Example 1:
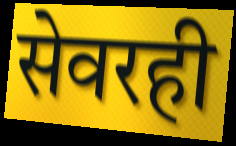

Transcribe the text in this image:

सेवरही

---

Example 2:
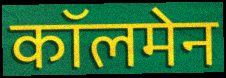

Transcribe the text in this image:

कॉलमेन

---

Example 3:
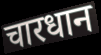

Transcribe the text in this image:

चारधान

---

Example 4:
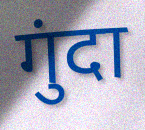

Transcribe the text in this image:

गुंदा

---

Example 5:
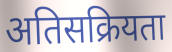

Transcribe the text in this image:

अतिसक्रियता